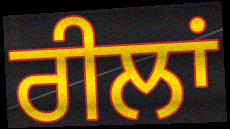
ਰੀਲਾਂ